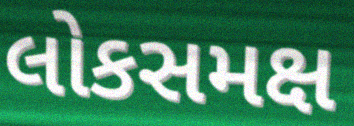
લોકસમક્ષ